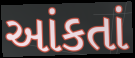
આંકતાં